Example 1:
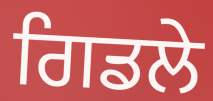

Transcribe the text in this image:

ਗਿਡਲੇ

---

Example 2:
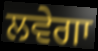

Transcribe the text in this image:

ਲਵੇਗਾ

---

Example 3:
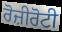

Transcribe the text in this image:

ਰੋਜ਼ੀਰੋਟੀ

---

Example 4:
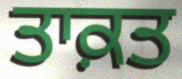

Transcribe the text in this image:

ਤਾਕ਼ਤ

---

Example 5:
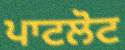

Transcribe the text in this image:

ਪਾਟਲੋਟ